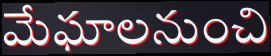
మేఘాలనుంచి